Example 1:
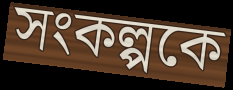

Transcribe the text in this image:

সংকল্পকে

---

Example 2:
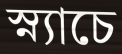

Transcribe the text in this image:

স্ন্যাচে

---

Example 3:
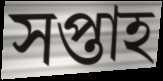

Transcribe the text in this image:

সপ্তাহ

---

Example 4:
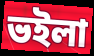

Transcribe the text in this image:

ভইলা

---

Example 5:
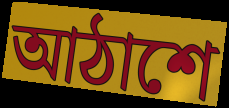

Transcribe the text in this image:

আঠাশে